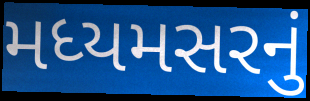
મધ્યમસરનું